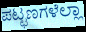
ಪಟ್ಟಣಗಳೆಲ್ಲಾ